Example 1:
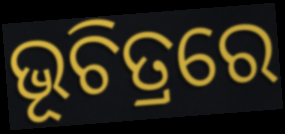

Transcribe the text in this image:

ଭୂଚିତ୍ରରେ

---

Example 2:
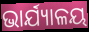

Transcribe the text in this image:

ଭାର୍ଯ୍ୟାଳୟ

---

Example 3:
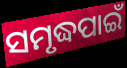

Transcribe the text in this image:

ସମୃଦ୍ଧପାଇଁ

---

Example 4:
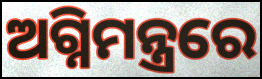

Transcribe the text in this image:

ଅଗ୍ନିମନ୍ତ୍ରରେ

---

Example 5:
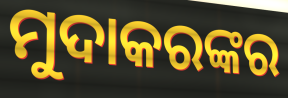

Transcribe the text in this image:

ମୁଦାକରଙ୍କର